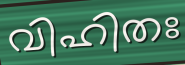
വിഹിതഃ